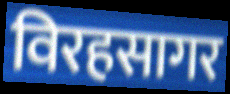
विरहसागर